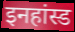
इनहांस्ड